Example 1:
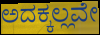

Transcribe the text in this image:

ಅದಕ್ಕಲ್ಲವೇ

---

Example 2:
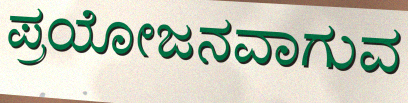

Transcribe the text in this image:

ಪ್ರಯೋಜನವಾಗುವ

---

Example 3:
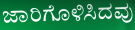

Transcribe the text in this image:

ಜಾರಿಗೊಳಿಸಿದವು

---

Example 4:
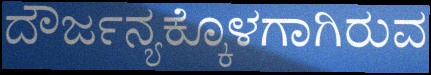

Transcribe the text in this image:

ದೌರ್ಜನ್ಯಕ್ಕೊಳಗಾಗಿರುವ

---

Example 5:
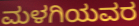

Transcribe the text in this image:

ಮಳಗಿಯವರ